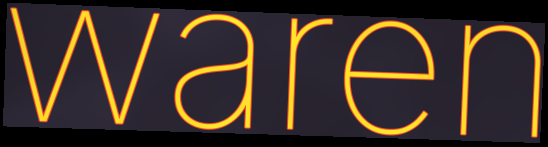
waren